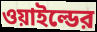
ওয়াইল্ডের